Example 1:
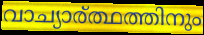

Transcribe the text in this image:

വാച്യാര്ത്ഥത്തിനും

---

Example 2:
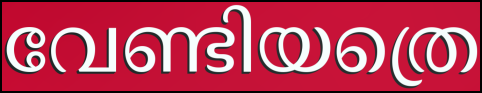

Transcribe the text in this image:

വേണ്ടിയത്രെ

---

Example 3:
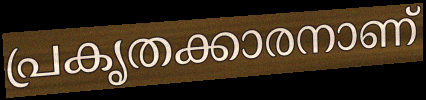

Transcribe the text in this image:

പ്രകൃതക്കാരനാണ്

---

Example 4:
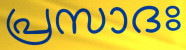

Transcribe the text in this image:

പ്രസാദഃ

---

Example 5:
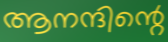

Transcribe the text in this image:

ആനന്ദിന്റെ